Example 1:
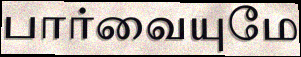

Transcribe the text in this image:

பார்வையுமே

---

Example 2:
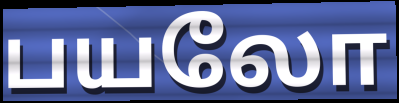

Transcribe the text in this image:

பயலோ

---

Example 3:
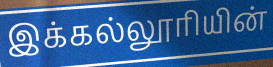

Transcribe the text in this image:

இக்கல்லூரியின்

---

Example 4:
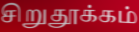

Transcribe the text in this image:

சிறுதூக்கம்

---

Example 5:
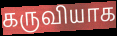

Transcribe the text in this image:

கருவியாக